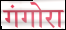
गंगोरा